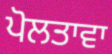
ਪੋਲਤਾਵਾ